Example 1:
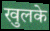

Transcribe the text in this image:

खुलके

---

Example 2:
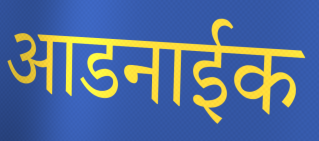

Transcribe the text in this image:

आडनाईक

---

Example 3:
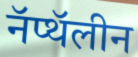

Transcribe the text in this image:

नॅप्थॅलीन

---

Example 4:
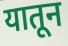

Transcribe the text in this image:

यातून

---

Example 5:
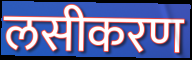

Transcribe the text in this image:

लसीकरण